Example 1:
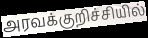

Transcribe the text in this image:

அரவக்குறிச்சியில்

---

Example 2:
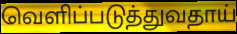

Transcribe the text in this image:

வெளிப்படுத்துவதாய்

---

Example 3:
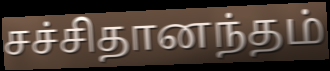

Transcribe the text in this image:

சச்சிதானந்தம்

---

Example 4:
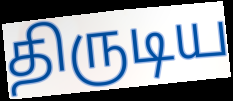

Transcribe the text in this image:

திருடிய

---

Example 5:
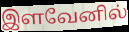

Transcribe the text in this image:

இளவேனில்